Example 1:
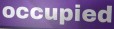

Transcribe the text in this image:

occupied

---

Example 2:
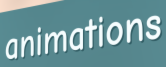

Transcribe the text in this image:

animations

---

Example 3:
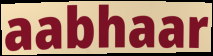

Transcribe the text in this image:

aabhaar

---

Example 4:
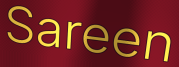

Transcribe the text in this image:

Sareen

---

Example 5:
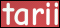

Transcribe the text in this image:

tarii